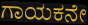
ಗಾಯಕನೇ